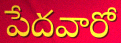
పేదవారో